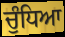
ਚੁੰਧਿਆ